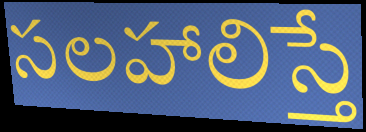
సలహాలిస్తే